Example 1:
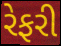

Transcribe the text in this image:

રેફરી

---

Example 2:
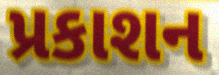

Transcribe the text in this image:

પ્રકાશન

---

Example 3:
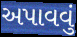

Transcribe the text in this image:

અપાવવું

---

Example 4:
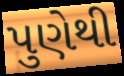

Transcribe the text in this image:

પુણેથી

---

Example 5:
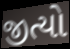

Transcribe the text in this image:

જીત્યો